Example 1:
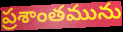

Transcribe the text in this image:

ప్రశాంతమును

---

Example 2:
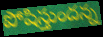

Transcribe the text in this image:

పోషిస్తుందన్న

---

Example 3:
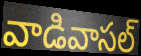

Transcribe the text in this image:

వాడివాసల్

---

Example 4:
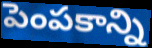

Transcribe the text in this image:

పెంపకాన్ని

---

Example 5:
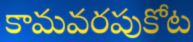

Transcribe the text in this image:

కామవరపుకోట